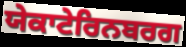
ਯੇਕਾਟੇਰਿਨਬਰਗ